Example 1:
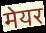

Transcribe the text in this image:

मेयर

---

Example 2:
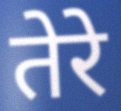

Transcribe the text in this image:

तेरे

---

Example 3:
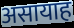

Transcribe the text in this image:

असायाह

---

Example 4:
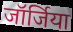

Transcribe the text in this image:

जॉर्जिया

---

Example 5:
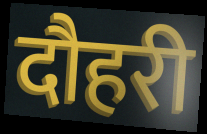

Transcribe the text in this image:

दौहरी